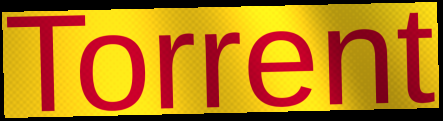
Torrent